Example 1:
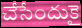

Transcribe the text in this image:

చేసేందుకై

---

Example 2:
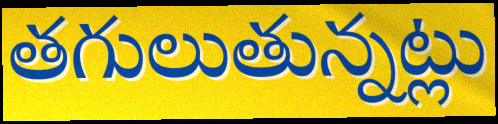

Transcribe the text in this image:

తగులుతున్నట్లు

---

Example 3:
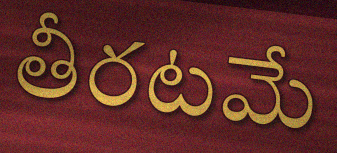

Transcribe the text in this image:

తీరటమే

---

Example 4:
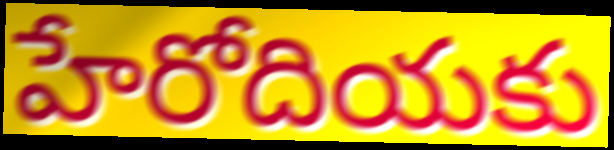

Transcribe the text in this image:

హేరోదియకు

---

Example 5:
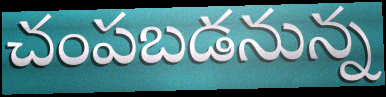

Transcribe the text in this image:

చంపబడనున్న